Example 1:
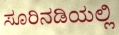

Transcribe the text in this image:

ಸೂರಿನಡಿಯಲ್ಲಿ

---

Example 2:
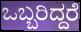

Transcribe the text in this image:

ಒಬ್ಬರಿದ್ದರೆ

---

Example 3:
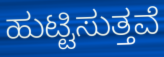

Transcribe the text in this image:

ಹುಟ್ಟಿಸುತ್ತವೆ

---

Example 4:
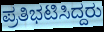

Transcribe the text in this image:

ಪ್ರತಿಭಟಿಸಿದ್ದರು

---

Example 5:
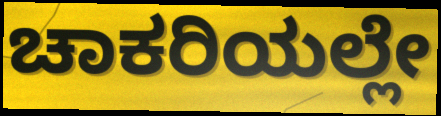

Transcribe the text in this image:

ಚಾಕರಿಯಲ್ಲೇ